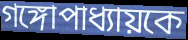
গঙ্গোপাধ্যায়কে